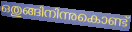
ഒതുങ്ങിനിന്നുകൊണ്ട്